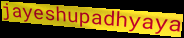
jayeshupadhyaya